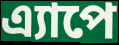
এ্যাপে